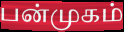
பன்முகம்